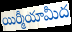
యిర్మీయామీద